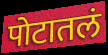
पोटातलं